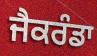
ਜੈਕਰੰਡਾ